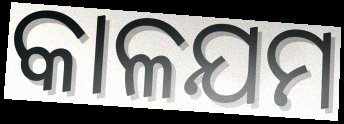
କାଳଯମ